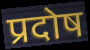
प्रदोष